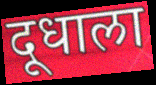
दूधाला